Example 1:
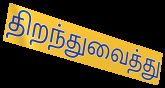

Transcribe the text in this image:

திறந்துவைத்து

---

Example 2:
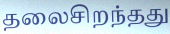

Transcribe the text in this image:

தலைசிறந்தது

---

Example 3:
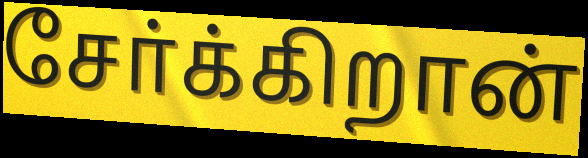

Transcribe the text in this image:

சேர்க்கிறான்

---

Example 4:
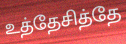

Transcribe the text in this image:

உத்தேசித்தே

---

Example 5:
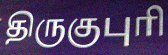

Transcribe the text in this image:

திருகுபுரி